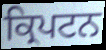
ਕ੍ਰਿਪਟਨ